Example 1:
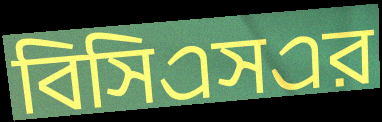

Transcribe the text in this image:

বিসিএসএর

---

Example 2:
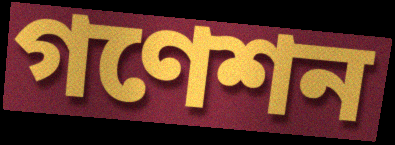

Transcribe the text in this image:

গণেশন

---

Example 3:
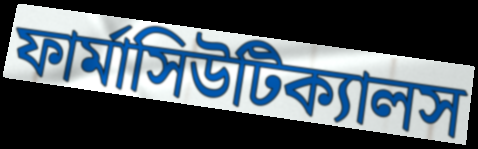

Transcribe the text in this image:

ফার্মাসিউটিক্যালস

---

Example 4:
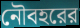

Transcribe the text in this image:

নৌবহরের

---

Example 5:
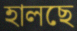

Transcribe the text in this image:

হালছে